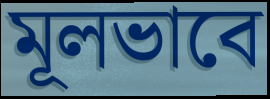
মূলভাবে